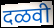
दळवी